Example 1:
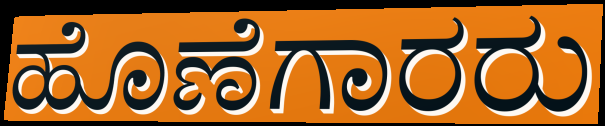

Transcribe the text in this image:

ಹೊಣೆಗಾರರು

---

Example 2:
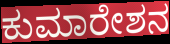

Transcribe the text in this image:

ಕುಮಾರೇಶನ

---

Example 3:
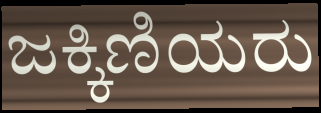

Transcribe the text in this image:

ಜಕ್ಕಿಣಿಯರು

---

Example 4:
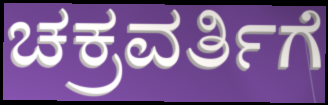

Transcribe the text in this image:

ಚಕ್ರವರ್ತಿಗೆ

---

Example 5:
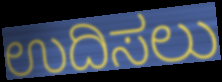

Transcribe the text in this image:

ಉದಿಸಲು